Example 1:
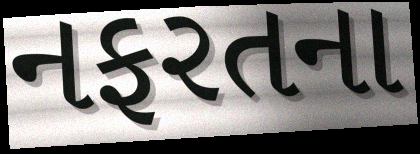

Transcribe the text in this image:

નફરતના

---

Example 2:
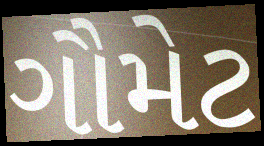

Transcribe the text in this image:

ગૌમેટ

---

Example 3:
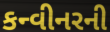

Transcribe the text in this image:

કન્વીનરની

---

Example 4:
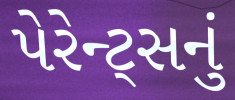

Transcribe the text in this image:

પેરેન્ટ્સનું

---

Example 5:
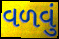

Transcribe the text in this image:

વળવું